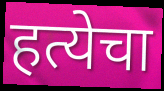
हत्येचा